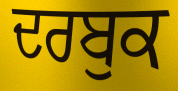
ਦਰਬੁਕ